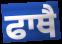
ਫਾਥੈ